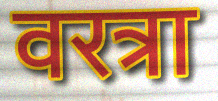
वरत्रा